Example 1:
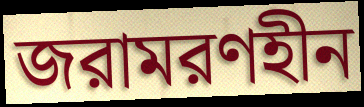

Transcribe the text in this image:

জরামরণহীন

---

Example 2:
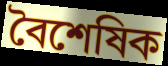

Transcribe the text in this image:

বৈশেষিক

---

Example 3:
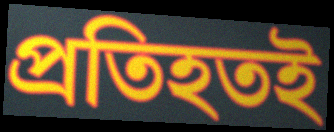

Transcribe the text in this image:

প্রতিহতই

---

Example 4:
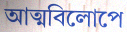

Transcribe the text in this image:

আত্মবিলোপে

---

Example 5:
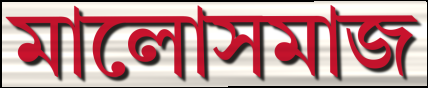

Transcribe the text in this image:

মালোসমাজ